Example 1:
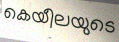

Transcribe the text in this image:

കെയീലയുടെ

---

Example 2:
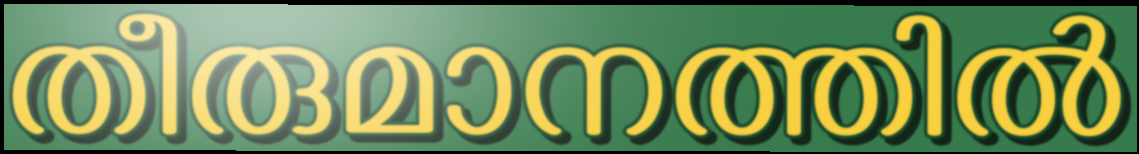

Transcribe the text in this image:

തീരുമാനത്തിൽ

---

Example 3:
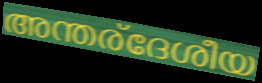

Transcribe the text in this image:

അന്തര്ദേശീയ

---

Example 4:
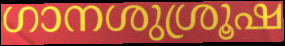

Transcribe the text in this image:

ഗാനശുശ്രൂഷ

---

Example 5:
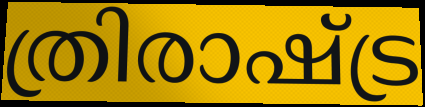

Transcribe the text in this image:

ത്രിരാഷ്ട്ര